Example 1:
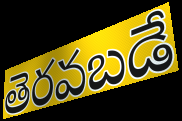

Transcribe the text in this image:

తెరవబడే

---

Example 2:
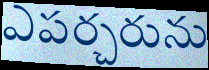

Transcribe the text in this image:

ఎపర్చరును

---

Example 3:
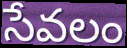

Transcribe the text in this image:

సేవలం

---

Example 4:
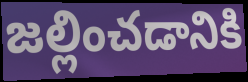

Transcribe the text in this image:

జల్లించడానికి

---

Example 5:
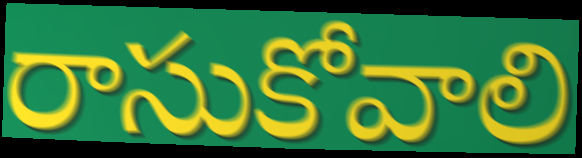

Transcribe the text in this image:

రాసుకోవాలి